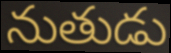
నుతుడు